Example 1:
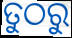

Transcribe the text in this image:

ତୁଠରୁ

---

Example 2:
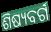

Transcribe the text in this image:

ଶିଷ୍ୟବର୍ଗ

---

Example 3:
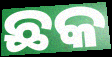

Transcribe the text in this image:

ଛକ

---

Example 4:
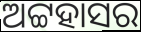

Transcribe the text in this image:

ଅଟ୍ଟହାସର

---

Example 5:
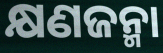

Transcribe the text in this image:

କ୍ଷଣଜନ୍ମା